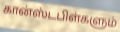
கான்ஸ்டபிள்களும்